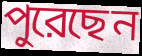
পুরেছেন